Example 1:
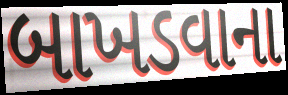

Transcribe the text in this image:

બાખડવાના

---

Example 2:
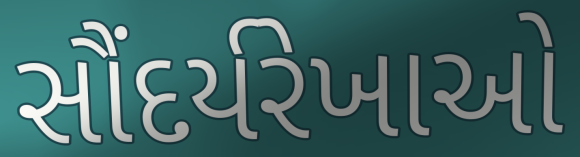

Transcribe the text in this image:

સૌંદર્યરેખાઓ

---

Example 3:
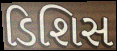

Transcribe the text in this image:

ડિશિસ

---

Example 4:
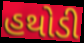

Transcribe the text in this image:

હથોડી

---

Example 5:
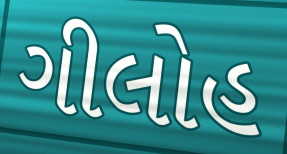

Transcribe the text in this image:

ગીલોહ